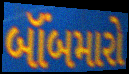
બૉંબમારો